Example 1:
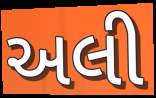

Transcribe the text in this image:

અલી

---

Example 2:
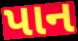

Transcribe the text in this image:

પાન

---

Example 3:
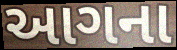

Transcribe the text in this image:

આગના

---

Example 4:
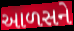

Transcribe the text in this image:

આળસને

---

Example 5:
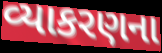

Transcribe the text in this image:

વ્યાકરણના